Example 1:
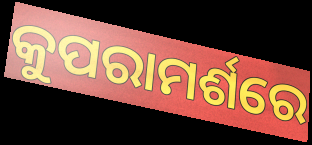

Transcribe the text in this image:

କୁପରାମର୍ଶରେ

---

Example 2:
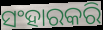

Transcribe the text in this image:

ସଂହାରକରି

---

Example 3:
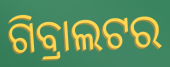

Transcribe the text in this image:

ଗିବ୍ରାଲଟର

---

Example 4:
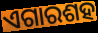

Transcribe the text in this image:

ଏଗାରଶହ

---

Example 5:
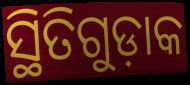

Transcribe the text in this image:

ସ୍ଥିତିଗୁଡ଼ାକ